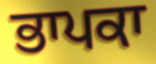
ਭਾਪਕਾ